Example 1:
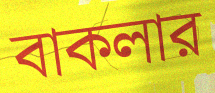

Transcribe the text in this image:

বাকলার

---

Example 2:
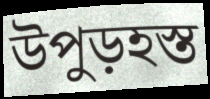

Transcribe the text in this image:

উপুড়হস্ত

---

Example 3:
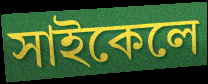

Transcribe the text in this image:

সাইকেলে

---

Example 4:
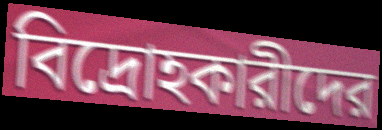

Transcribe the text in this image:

বিদ্রোহকারীদের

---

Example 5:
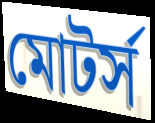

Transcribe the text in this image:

মোটর্স